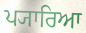
ਪ੍ਯਾਰਿਆ